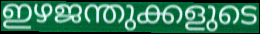
ഇഴജന്തുക്കളുടെ